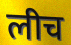
लीच